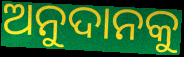
ଅନୁଦାନକୁ